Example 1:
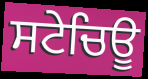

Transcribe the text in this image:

ਸਟੇਚਿਊ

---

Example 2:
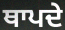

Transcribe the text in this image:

ਥਾਪਦੇ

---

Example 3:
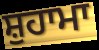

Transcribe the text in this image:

ਸ਼ੁਹਾਮਾ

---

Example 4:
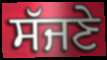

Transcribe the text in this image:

ਸੱਜਣੇ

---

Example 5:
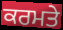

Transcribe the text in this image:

ਕਰਮਤੇ